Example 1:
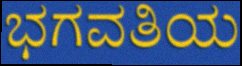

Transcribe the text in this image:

ಭಗವತಿಯ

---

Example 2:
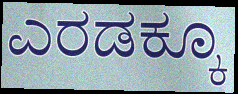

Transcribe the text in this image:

ಎರಡಕ್ಕೂ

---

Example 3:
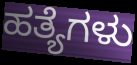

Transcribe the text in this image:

ಹತ್ಯೆಗಳು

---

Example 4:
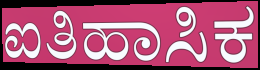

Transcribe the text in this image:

ಐತಿಹಾಸಿಕ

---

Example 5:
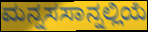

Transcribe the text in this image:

ಮನ್ನಸಸಾನ್ನಲ್ಲಿಯೆ